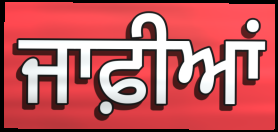
ਜਾਫ਼ੀਆਂ